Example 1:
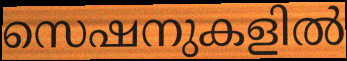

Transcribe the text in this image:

സെഷനുകളിൽ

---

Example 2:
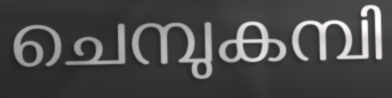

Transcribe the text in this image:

ചെമ്പുകമ്പി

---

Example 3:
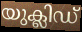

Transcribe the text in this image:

യുക്ലിഡ്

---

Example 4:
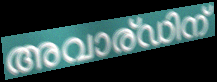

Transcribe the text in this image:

അവാര്ഡിന്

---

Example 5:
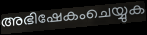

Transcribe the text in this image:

അഭിഷേകംചെയ്യുക